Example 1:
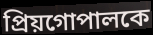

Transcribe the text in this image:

প্রিয়গোপালকে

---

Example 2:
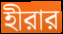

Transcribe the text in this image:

হীরার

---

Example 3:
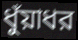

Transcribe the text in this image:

ধুঁয়াধর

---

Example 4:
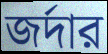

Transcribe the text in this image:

জর্দার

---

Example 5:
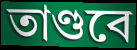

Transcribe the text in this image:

তাণ্ডবে